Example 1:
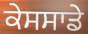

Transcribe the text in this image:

ਕੇਸਸਾਡੇ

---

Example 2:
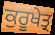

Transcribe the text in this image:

ਕੁਰੂਖੇਤ੍ਰ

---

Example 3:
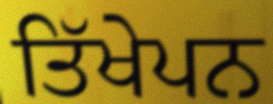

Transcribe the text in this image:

ਤਿੱਖੇਪਨ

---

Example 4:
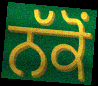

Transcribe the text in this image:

ਨੱਕੋਂ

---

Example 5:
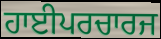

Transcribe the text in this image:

ਹਾਈਪਰਚਾਰਜ